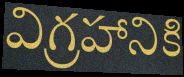
విగ్రహానికి